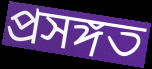
প্রসঙ্গত